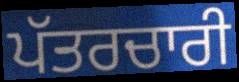
ਪੱਤਰਚਾਰੀ